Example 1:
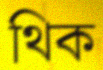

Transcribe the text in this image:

থিক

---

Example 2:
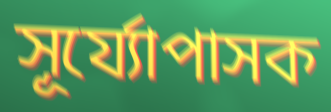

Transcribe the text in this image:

সূৰ্য্যোপাসক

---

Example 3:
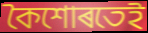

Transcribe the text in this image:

কৈশোৰতেই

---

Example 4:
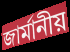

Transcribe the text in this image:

জাৰ্মানীয়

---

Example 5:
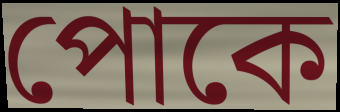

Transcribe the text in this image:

পোকে